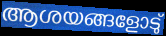
ആശയങ്ങളോടു്